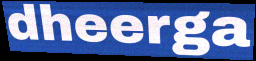
dheerga